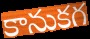
కానుకగ